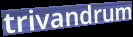
trivandrum